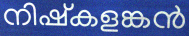
നിഷ്കളങ്കൻ